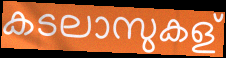
കടലാസുകള്